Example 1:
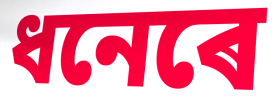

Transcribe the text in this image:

ধনেৰে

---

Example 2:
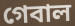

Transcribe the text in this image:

গেবাল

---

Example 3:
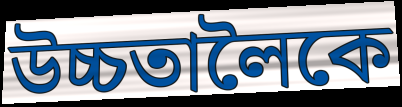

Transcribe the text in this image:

উচ্চতালৈকে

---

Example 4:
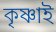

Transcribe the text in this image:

কৃষ্ণাই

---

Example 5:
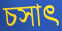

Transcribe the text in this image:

চসাৎ